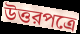
উত্তরপত্রে